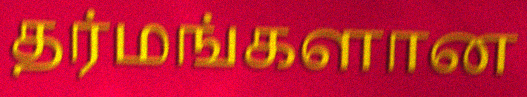
தர்மங்களான